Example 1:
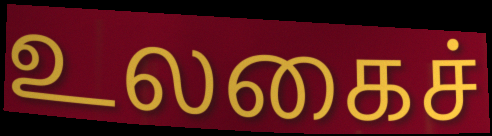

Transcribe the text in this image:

உலகைச்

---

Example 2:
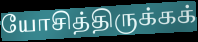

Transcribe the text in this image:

யோசித்திருக்கக்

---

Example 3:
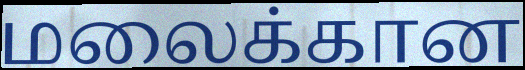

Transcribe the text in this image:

மலைக்கான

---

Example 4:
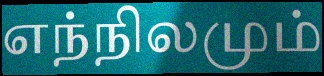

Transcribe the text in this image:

எந்நிலமும்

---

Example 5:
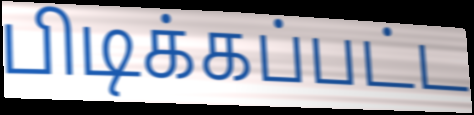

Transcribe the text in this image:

பிடிக்கப்பட்ட